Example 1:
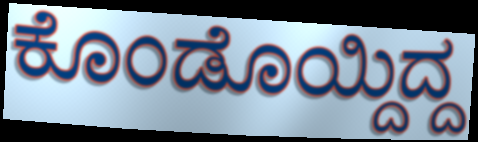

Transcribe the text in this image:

ಕೊಂಡೊಯ್ದಿದ್ದ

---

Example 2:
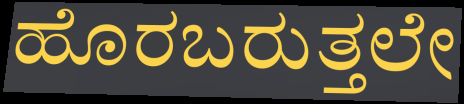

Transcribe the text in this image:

ಹೊರಬರುತ್ತಲೇ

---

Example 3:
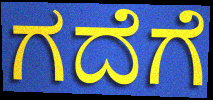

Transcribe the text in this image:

ಗದೆಗೆ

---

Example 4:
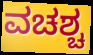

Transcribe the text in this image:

ವಚಶ್ಚ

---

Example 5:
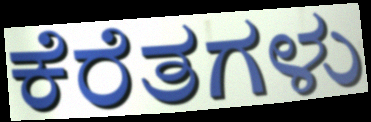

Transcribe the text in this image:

ಕೆರೆತಗಳು